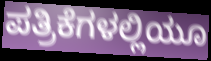
ಪತ್ರಿಕೆಗಳಲ್ಲಿಯೂ